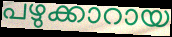
പഴുക്കാറായ